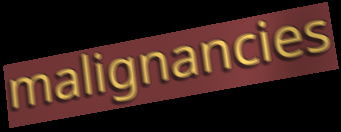
malignancies